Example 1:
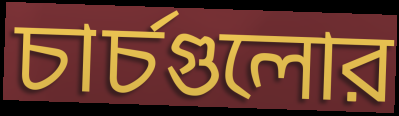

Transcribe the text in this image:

চার্চগুলোর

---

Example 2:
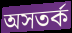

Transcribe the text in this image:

অসতর্ক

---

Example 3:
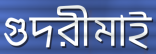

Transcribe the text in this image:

গুদরীমাই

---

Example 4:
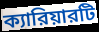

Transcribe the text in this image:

ক্যারিয়ারটি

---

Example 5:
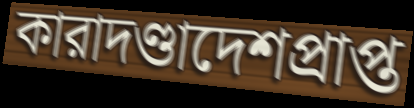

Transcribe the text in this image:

কারাদণ্ডাদেশপ্রাপ্ত